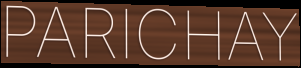
PARICHAY